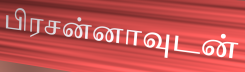
பிரசன்னாவுடன்